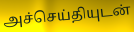
அச்செய்தியுடன்